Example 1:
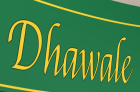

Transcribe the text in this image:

Dhawale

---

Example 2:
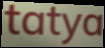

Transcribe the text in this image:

tatya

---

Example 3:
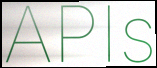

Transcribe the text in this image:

APIs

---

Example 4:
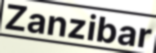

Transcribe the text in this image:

Zanzibar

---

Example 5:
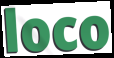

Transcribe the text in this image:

loco